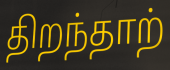
திறந்தாற்